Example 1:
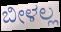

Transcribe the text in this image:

ಬೀಳಲ್ಲ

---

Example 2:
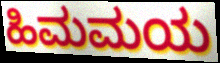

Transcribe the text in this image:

ಹಿಮಮಯ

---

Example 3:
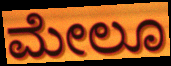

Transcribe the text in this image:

ಮೇಲೂ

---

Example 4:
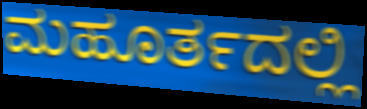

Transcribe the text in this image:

ಮಹೂರ್ತದಲ್ಲಿ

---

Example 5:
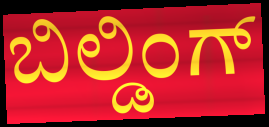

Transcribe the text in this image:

ಬಿಲ್ಡಿಂಗ್